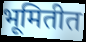
भूमितीत